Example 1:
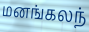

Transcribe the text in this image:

மனங்கலந்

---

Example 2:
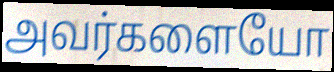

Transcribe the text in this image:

அவர்களையோ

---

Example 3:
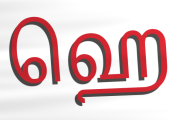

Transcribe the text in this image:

ஹெ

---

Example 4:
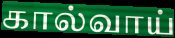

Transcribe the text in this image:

கால்வாய்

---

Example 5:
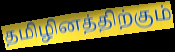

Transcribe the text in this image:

தமிழினத்திற்கும்